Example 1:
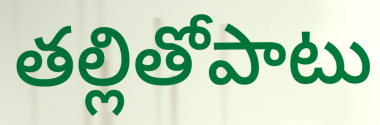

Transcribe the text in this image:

తల్లితోపాటు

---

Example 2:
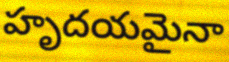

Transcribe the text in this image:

హృదయమైనా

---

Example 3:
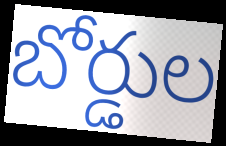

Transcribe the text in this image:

బోర్డుల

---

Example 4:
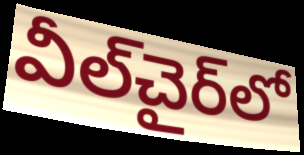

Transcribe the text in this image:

వీల్‌చైర్‌లో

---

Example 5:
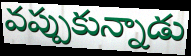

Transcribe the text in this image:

వప్పుకున్నాడు